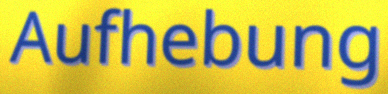
Aufhebung